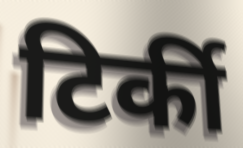
टिर्की